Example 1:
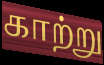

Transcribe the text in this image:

காற்று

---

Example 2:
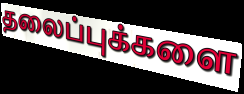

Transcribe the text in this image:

தலைப்புக்களை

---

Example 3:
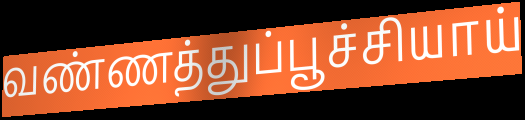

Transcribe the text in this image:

வண்ணத்துப்பூச்சியாய்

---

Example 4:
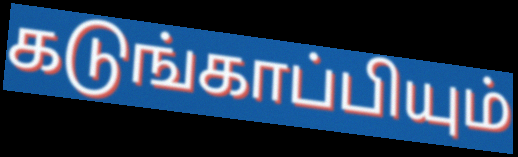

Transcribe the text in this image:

கடுங்காப்பியும்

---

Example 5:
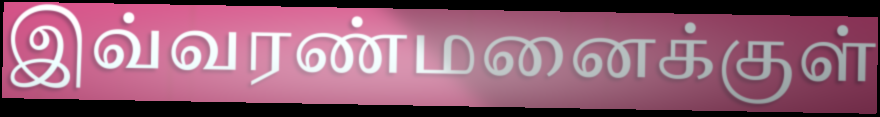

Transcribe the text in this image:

இவ்வரண்மனைக்குள்